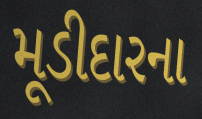
મૂડીદારના